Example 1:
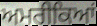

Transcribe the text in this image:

ਅਮਰੀਕਿਆਂ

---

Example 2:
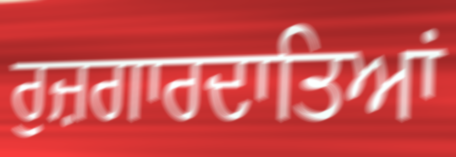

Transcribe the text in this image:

ਰੁਜ਼ਗਾਰਦਾਤਿਆਂ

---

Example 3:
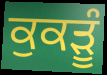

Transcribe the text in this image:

ਕੁਕੜੂੰ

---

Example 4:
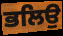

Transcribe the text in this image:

ਭਲਿਉ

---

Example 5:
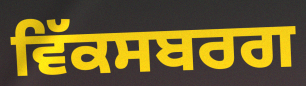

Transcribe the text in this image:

ਵਿੱਕਸਬਰਗ